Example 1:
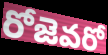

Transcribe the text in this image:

రోజెవరో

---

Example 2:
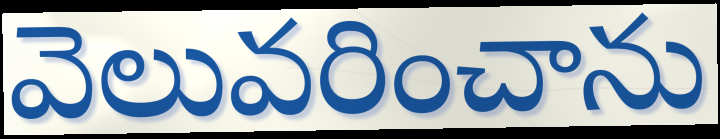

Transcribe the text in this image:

వెలువరించాను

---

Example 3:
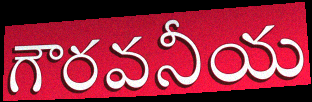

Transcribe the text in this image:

గౌరవనీయ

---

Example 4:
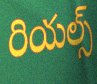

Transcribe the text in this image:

రియల్స్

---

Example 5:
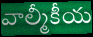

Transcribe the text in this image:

వాల్మీకీయ